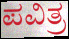
ಪವಿತ್ರ